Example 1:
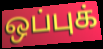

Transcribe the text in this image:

ஒப்புக்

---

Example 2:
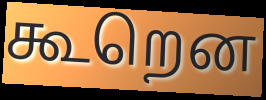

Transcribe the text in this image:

கூறென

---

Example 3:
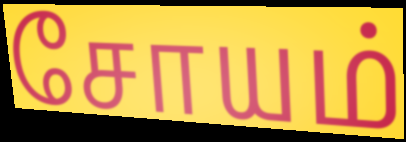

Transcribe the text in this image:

சோயம்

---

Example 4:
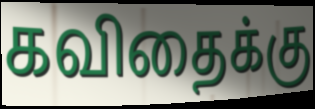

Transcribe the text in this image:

கவிதைக்கு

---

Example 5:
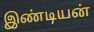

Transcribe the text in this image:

இண்டியன்